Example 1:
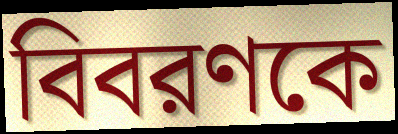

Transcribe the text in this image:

বিবরণকে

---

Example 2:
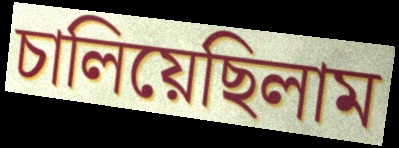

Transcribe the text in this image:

চালিয়েছিলাম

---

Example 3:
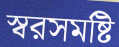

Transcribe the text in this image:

স্বরসমষ্টি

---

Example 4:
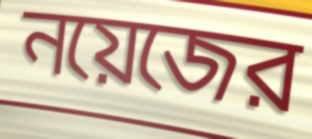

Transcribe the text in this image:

নয়েজের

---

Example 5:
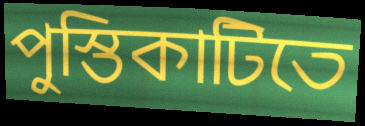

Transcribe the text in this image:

পুস্তিকাটিতে